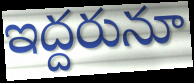
ఇద్దరునూ